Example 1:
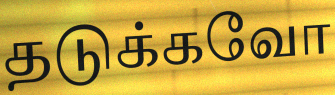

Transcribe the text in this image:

தடுக்கவோ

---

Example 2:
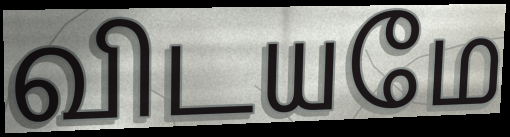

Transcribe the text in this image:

விடயமே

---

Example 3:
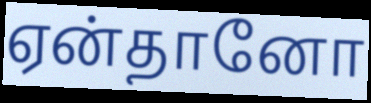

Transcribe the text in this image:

ஏன்தானோ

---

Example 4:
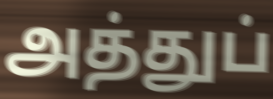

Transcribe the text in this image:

அத்துப்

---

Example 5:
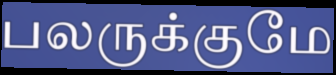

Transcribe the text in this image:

பலருக்குமே